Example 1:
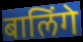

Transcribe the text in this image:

बालिंगे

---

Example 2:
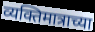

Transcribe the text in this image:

व्यक्तिमात्राच्या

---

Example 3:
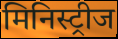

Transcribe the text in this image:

मिनिस्ट्रीज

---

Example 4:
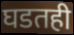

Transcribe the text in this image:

घडतही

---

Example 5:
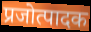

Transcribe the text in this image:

प्रजोत्पादक